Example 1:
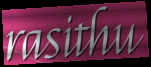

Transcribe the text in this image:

rasithu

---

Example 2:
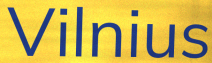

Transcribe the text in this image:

Vilnius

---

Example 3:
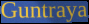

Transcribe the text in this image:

Guntraya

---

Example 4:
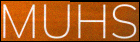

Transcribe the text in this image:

MUHS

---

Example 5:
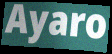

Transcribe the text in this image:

Ayaro